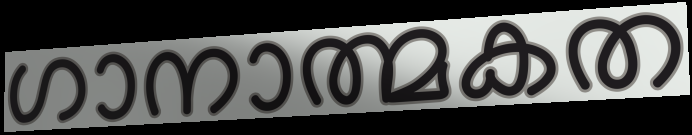
ഗാനാത്മകത